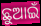
ଛୁଆଇଁ